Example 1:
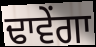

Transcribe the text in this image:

ਢਾਵੇਂਗਾ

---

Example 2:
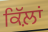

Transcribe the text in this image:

ਕਿੱਲ਼ਾਂ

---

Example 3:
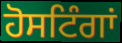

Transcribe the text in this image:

ਹੋਸਟਿੰਗਾਂ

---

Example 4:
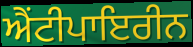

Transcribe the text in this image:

ਐਂਟੀਪਾਇਰੀਨ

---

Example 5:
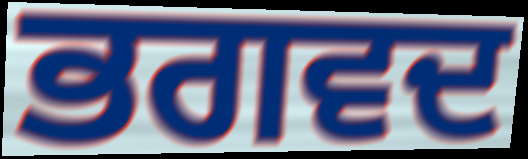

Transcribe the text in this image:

ਭਗਵਦ